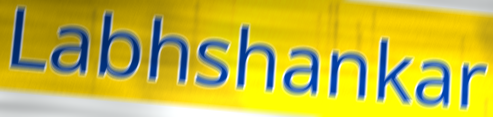
Labhshankar